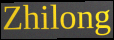
Zhilong